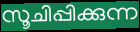
സൂചിപ്പിക്കുന്ന